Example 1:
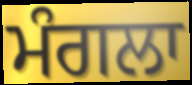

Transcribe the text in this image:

ਮੰਗਲਾ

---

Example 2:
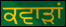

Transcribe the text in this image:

ਕਵਾੜਾਂ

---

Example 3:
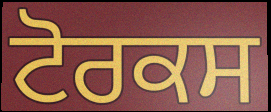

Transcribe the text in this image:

ਟੋਰਕਸ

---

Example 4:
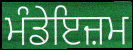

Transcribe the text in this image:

ਮੰਡੇਇਜ਼ਮ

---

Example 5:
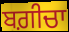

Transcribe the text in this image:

ਬਗ਼ੀਚਾ